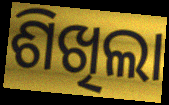
ଶିଖିଲା